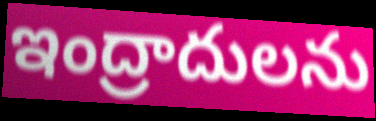
ఇంద్రాదులను